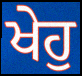
ਖੇਹੁ